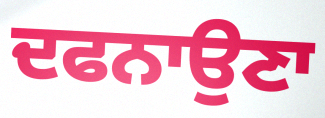
ਦਫਨਾਉਣਾ